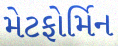
મેટફોર્મિન